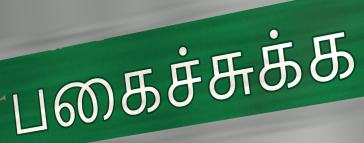
பகைச்சுக்க